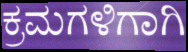
ಕ್ರಮಗಳಿಗಾಗಿ